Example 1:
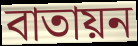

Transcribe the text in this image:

বাতায়ন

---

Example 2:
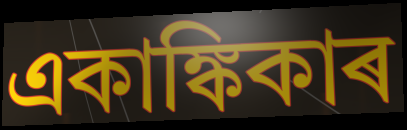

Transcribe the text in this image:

একাঙ্কিকাৰ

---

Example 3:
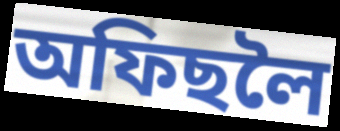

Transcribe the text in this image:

অফিছলৈ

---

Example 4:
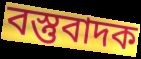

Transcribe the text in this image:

বস্তুবাদক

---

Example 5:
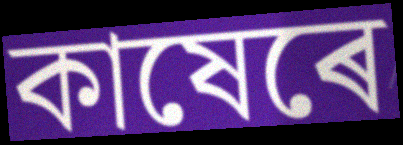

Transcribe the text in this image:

কাষেৰে